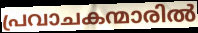
പ്രവാചകന്മാരിൽ